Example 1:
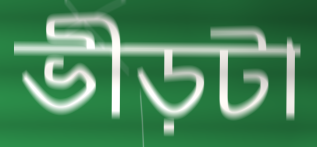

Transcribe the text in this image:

ভীড়টা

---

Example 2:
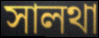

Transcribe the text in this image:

সালথা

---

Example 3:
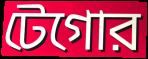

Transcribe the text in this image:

টেগোর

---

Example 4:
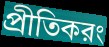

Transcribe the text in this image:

প্রীতিকরং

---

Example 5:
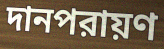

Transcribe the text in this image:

দানপরায়ণ